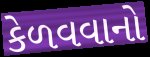
કેળવવાનો